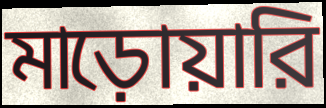
মাড়োয়ারি